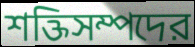
শক্তিসম্পদের